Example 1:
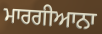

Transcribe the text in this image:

ਮਾਰਗੀਆਨਾ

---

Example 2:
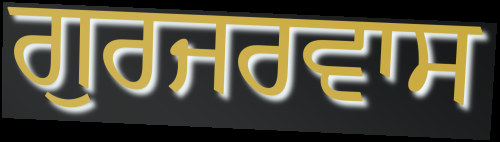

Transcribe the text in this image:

ਗੁਰਜਰਵਾਸ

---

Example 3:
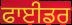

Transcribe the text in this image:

ਫਾਈਡਰ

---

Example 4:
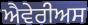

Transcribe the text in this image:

ਐਵੇਰੀਅਸ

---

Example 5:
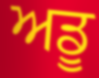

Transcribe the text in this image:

ਅਡੂ